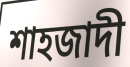
শাহজাদী